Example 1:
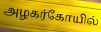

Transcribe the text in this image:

அழகர்கோயில்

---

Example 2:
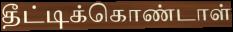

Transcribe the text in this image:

தீட்டிக்கொண்டாள்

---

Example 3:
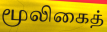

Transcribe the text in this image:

மூலிகைத்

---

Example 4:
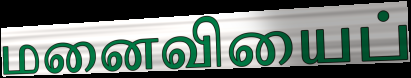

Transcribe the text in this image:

மனைவியைப்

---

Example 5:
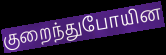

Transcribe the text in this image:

குறைந்துபோயின